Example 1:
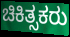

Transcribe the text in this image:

ಚಿಕಿತ್ಸಕರು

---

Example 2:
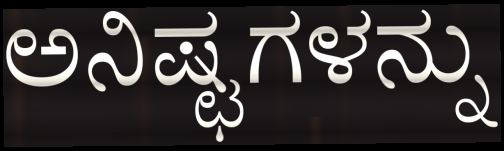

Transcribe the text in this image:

ಅನಿಷ್ಟಗಳನ್ನು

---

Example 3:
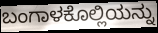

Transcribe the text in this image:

ಬಂಗಾಳಕೊಲ್ಲಿಯನ್ನು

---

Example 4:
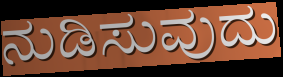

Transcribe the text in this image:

ನುಡಿಸುವುದು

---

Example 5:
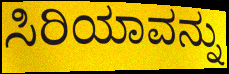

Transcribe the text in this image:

ಸಿರಿಯಾವನ್ನು